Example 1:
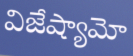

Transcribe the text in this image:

విజేష్యామో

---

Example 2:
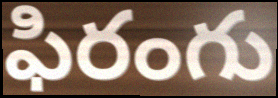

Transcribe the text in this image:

ఫిరంగు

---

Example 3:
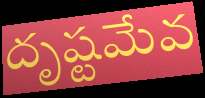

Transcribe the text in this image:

దృష్టమేవ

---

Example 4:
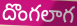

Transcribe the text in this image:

దొంగలాగ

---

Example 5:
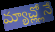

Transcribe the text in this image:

మ్యాచ్ల్లోనే